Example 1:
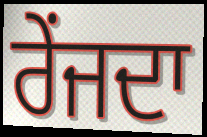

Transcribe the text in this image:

ਰੇਂਜਦਾ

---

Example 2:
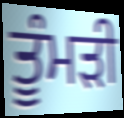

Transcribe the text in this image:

ਤੂੰਮੜੀ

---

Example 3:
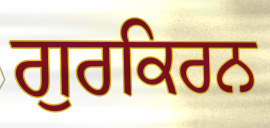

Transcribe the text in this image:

ਗੁਰਕਿਰਨ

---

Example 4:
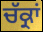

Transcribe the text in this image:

ਚੱਕ੍ਰਾਂ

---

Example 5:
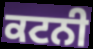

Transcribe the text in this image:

ਕਟਨੀ